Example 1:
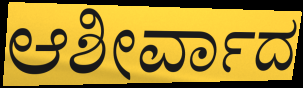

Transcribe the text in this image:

ಆಶೀರ್ವಾದ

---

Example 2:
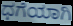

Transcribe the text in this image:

ಧಗೆಯಾಗಿ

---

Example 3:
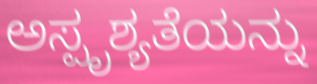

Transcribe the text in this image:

ಅಸ್ಪೃಶ್ಯತೆಯನ್ನು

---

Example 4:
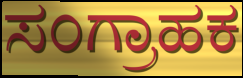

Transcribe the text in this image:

ಸಂಗ್ರಾಹಕ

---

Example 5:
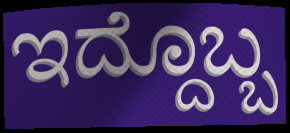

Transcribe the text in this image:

ಇದ್ದೊಬ್ಬ